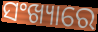
ସଂଖ୍ଯାରେ